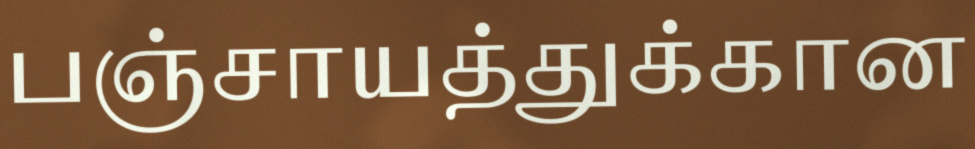
பஞ்சாயத்துக்கான